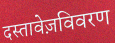
दस्तावेज़विवरण